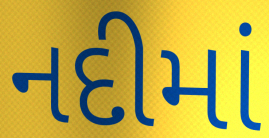
નદીમાં